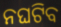
ନଘଟିବ